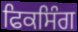
ਫਿਕਸਿੰਗ